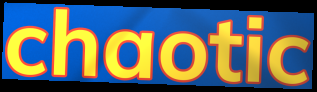
chaotic